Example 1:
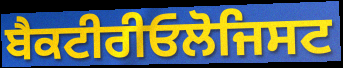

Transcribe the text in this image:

ਬੈਕਟੀਰੀਓਲੋਜਿਸਟ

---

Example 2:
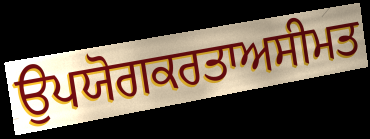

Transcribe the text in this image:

ਉਪਯੋਗਕਰਤਾਅਸੀਮਤ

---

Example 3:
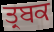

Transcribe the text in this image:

ਤ੍ਰਬਕ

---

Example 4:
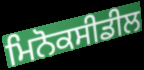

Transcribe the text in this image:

ਮਿਨੋਕਸੀਡੀਲ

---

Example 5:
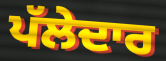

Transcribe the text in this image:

ਪੱਲੇਦਾਰ